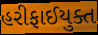
હરીફાઈયુક્ત